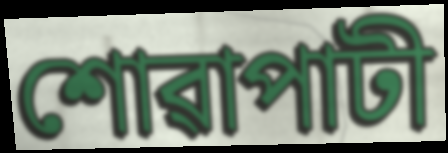
শোৱাপাটী